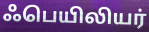
ஃபெயிலியர்